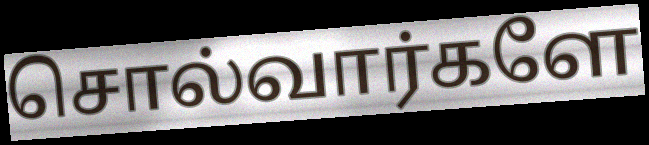
சொல்வார்களே